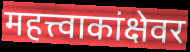
महत्त्वाकांक्षेवर